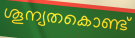
ശൂന്യതകൊണ്ട്